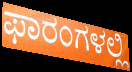
ಫಾರಂಗಳಲ್ಲಿ